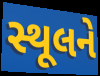
સ્થૂલને